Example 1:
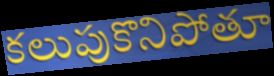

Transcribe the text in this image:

కలుపుకొనిపోతూ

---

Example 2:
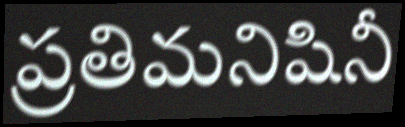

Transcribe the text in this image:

ప్రతిమనిషినీ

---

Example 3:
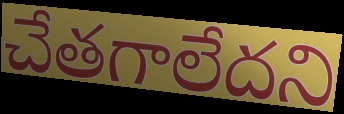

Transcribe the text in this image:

చేతగాలేదని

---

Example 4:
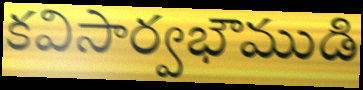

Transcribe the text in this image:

కవిసార్వభౌముడి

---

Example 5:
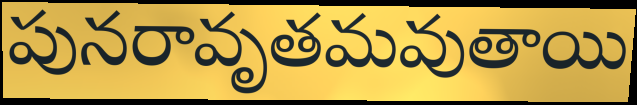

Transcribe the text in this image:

పునరావృతమవుతాయి